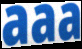
aaa